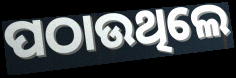
ପଠାଉଥିଲେ